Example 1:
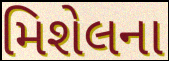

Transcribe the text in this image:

મિશેલના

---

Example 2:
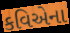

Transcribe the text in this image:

કવિએના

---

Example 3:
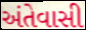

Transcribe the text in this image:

અંતેવાસી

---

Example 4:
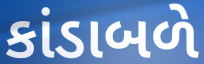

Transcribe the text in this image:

કાંડાબળે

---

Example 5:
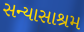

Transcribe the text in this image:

સન્યાસાશ્રમ